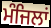
ਮੰਜਿਲਾਂ